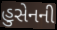
હુસેનની